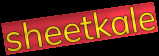
sheetkale